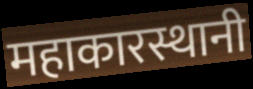
महाकारस्थानी